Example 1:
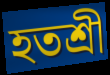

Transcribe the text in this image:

হতশ্রী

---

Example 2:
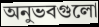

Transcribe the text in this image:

অনুভবগুলো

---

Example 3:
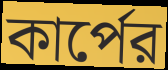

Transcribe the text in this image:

কার্পের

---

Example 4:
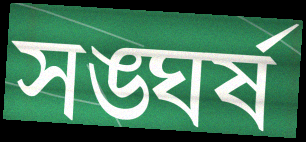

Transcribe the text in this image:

সঙ্ঘর্ষ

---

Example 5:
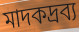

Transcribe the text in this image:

মাদকদ্রব্য